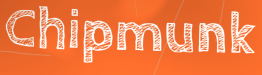
Chipmunk